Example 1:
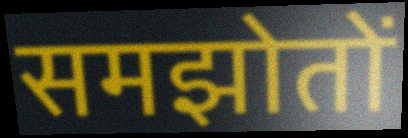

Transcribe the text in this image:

समझोतों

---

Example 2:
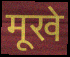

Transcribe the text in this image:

मूखे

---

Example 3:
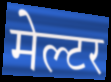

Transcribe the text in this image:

मेल्टर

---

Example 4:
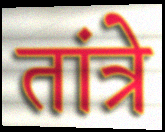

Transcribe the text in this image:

तांत्रे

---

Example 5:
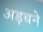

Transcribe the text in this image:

अड़चने